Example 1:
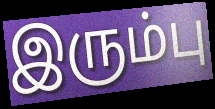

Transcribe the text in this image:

இரும்பு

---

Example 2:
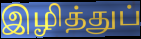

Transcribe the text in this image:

இழித்துப்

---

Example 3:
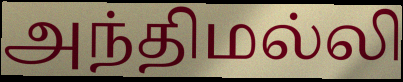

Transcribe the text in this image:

அந்திமல்லி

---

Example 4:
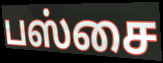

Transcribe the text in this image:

பஸ்சை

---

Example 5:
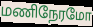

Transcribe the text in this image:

மணிநேரமோ